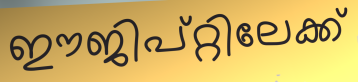
ഈജിപ്റ്റിലേക്ക്